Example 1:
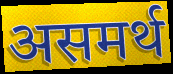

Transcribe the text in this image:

असमर्थ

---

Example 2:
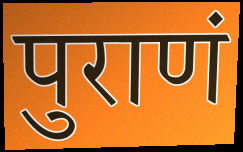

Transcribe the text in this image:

पुराणं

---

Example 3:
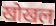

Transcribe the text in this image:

खोखल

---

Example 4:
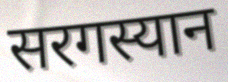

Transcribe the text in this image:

सरगस्यान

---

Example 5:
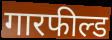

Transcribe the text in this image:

गारफील्ड